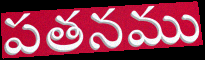
పతనము